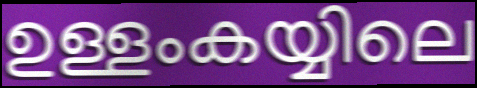
ഉള്ളംകയ്യിലെ